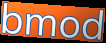
bmod